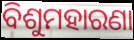
ବିଶୁମହାରଣା